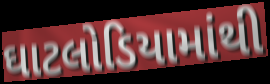
ઘાટલોડિયામાંથી